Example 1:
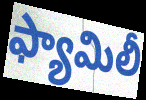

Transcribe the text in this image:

ఫ్యామిలీ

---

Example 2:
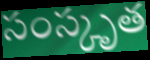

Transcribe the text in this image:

సంస్కృత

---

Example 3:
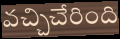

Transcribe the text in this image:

వచ్చిచేరింది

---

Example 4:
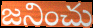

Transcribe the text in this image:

జనించు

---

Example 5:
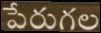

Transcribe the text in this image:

పేరుగల